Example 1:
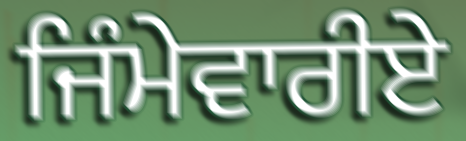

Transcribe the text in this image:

ਜਿੰਮੇਵਾਰੀਏ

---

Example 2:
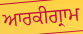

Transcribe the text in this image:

ਆਰਕੀਗ੍ਰਾਮ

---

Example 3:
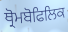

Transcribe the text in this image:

ਥ੍ਰੋਮਬੋਫਿਲਿਕ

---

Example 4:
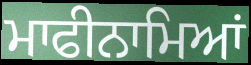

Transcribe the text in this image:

ਮਾਫੀਨਾਮਿਆਂ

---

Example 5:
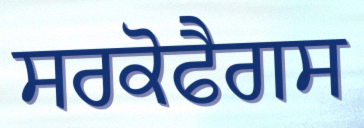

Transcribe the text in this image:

ਸਰਕੋਫੈਗਸ